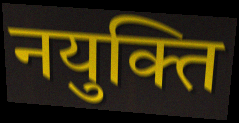
नयुक्ति